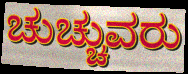
ಚುಚ್ಚುವರು